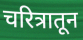
चरित्रातून